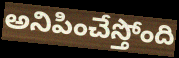
అనిపించేస్తోంది